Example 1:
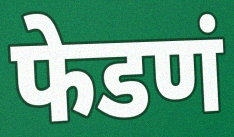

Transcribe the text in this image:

फेडणं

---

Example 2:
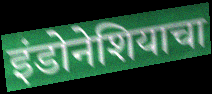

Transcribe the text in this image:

इंडोनेशियाचा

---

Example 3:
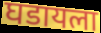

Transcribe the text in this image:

घडायला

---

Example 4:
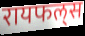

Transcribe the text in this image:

रायफल्स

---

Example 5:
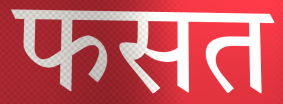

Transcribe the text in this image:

फसत